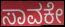
ಸಾವಕೇ